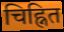
चिह्नित